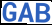
GAB